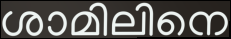
ശാമിലിനെ